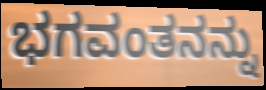
ಭಗವಂತನನ್ನು